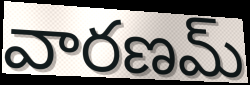
వారణమ్